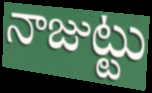
నాజుట్టు